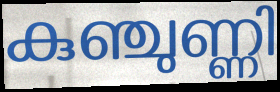
കുഞ്ചുണ്ണി